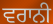
ਵਰਾਨੀ